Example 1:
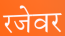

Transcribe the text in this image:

रजेवर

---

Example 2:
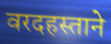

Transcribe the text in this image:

वरदहस्ताने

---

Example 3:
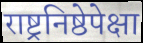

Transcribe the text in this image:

राष्ट्रनिष्ठेपेक्षा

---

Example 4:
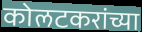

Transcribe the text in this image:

कोलटकरांच्या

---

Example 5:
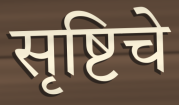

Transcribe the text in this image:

सृष्टिचे